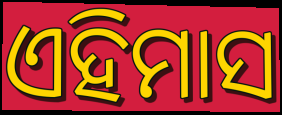
ଏହିମାସ